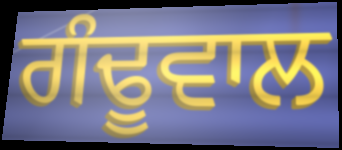
ਗੰਢੂਵਾਲ